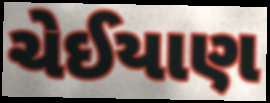
ચેઈયાણ